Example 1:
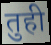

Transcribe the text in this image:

तुही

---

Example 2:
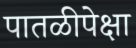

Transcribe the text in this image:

पातळीपेक्षा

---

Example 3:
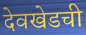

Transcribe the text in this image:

देवखेडची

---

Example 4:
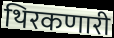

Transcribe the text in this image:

थिरकणारी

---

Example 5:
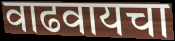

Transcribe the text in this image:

वाढवायचा